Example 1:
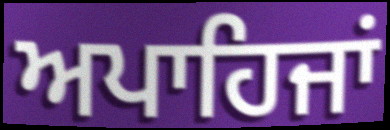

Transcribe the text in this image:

ਅਪਾਹਿਜਾਂ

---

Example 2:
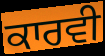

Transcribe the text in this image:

ਕਾਰਵੀ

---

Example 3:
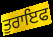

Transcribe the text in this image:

ਤੁਰਾਇਫ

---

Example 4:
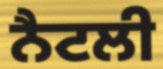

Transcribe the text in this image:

ਨੈਟਲੀ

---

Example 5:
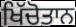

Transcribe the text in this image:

ਖਿੱਚੋਤਾਨ